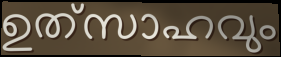
ഉത്‌സാഹവും